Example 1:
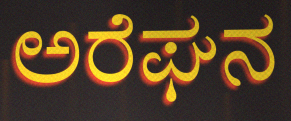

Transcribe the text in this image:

ಅರೆಘನ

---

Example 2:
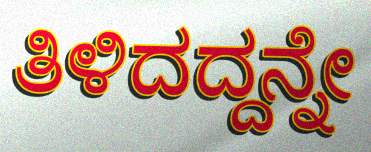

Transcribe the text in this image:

ತಿಳಿದದ್ದನ್ನೇ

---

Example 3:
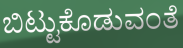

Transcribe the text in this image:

ಬಿಟ್ಟುಕೊಡುವಂತೆ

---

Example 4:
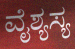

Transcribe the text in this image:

ವೈಶ್ಯಸ್ಯ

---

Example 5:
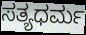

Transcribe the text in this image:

ಸತ್ಯಧರ್ಮ